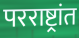
परराष्ट्रांत